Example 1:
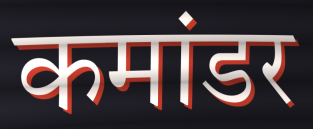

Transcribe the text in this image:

कमांडर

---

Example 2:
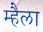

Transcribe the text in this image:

म्हैला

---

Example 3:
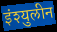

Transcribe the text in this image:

इंश्युलीन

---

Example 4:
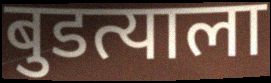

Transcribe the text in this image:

बुडत्याला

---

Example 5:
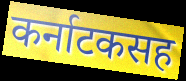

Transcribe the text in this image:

कर्नाटकसह